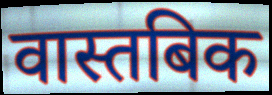
वास्तबिक